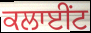
ਕਲਾਈਂਟ